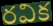
రవిక